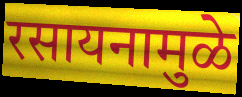
रसायनामुळे